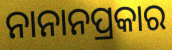
ନାନାନପ୍ରକାର